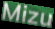
Mizu